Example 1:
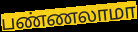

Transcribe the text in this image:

பண்ணலாமா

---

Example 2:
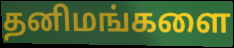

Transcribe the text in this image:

தனிமங்களை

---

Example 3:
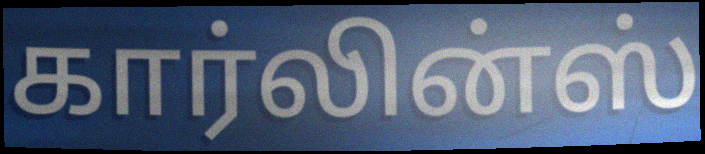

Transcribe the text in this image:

கார்லின்ஸ்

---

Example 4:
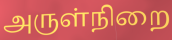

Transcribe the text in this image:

அருள்நிறை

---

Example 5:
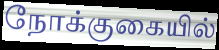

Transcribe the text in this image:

நோக்குகையில்